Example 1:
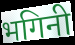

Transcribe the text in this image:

भगिनी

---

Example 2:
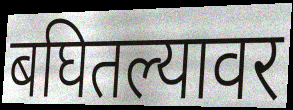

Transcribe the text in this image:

बघितल्यावर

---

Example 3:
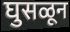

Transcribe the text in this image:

घुसळून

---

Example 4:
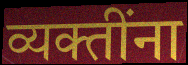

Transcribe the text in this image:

व्यक्‍तींना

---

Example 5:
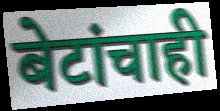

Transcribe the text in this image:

बेटांचाही